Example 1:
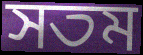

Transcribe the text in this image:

সতম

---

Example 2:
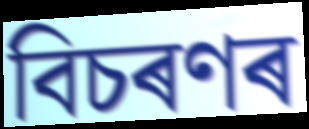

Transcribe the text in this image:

বিচৰণৰ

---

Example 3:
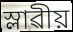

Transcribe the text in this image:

স্লাৱীয়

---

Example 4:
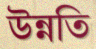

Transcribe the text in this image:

উন্নতি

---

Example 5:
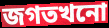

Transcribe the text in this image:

জগতখনো